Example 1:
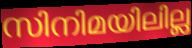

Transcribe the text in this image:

സിനിമയിലില്ല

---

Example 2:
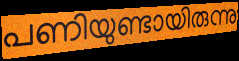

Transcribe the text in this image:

പണിയുണ്ടായിരുന്നു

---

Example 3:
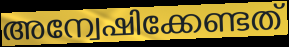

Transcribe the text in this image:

അന്വേഷിക്കേണ്ടത്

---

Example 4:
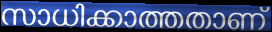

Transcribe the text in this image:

സാധിക്കാത്തതാണ്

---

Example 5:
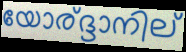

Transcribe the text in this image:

യോര്ദ്ദാനില്